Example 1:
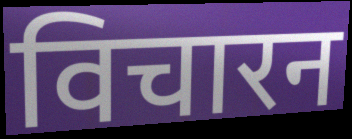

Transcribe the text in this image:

विचारन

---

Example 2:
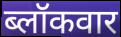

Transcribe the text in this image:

ब्लॉकवार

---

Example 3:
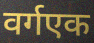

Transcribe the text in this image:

वर्गएक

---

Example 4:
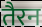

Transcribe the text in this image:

तैरन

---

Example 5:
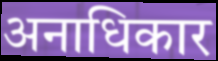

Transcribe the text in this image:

अनाधिकार